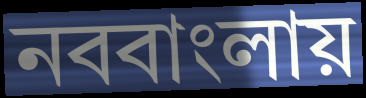
নববাংলায়